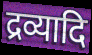
द्रव्यादि